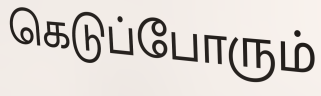
கெடுப்போரும்